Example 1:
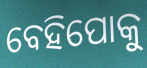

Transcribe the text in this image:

ବେହିପୋକୁ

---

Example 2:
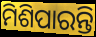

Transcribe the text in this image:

ମିଶିପାରନ୍ତି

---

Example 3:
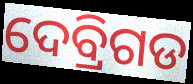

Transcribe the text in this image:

ଦେବ୍ରିଗଡ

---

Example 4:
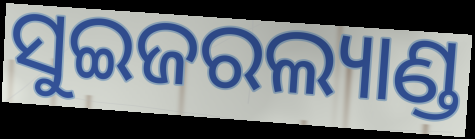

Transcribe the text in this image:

ସୁଇଜରଲ୍ୟାଣ୍ଡ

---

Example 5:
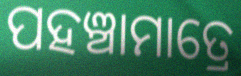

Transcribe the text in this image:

ପହଞ୍ଚାମାତ୍ରେ